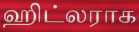
ஹிட்லராக